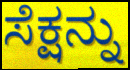
ಸೆಕ್ಷನ್ನು